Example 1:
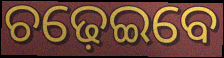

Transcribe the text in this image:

ଚଢ଼େଇବେ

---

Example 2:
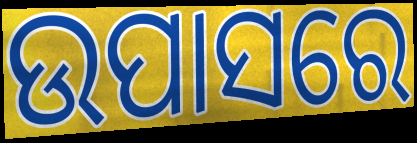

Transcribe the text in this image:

ଉପାସରେ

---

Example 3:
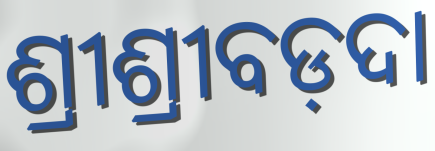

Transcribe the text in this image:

ଶ୍ରୀଶ୍ରୀବଡ଼ଦା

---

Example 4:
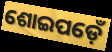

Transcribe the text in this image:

ଶୋଇପଡ଼େଁ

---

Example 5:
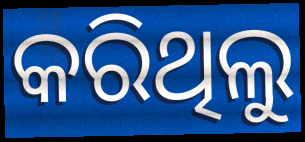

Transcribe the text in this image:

କରିଥିଲୁ